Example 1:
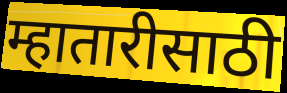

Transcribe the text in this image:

म्हातारीसाठी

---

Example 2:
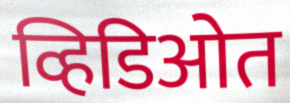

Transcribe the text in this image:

व्हिडिओत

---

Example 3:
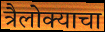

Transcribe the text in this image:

त्रैलोक्याचा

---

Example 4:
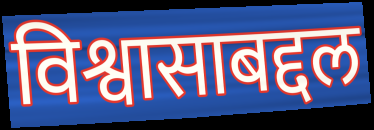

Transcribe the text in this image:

विश्वासाबद्दल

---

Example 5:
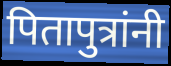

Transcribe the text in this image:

पितापुत्रांनी